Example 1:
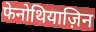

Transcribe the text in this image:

फेनोथियाज़िन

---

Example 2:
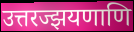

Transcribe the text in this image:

उत्तरज्झयणाणि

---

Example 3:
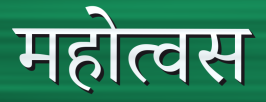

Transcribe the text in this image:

महोत्वस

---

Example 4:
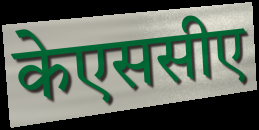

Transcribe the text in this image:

केएससीए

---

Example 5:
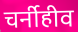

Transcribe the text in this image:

चर्नीहीव